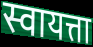
स्वायत्ता